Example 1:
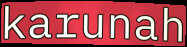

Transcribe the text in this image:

karunah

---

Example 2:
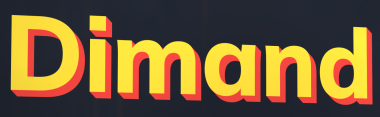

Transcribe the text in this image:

Dimand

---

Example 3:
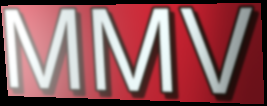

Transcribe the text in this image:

MMV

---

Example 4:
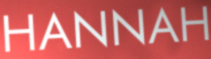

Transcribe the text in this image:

HANNAH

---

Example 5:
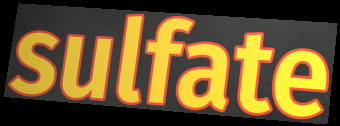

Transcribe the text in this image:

sulfate